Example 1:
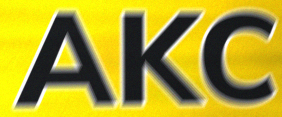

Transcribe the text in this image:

AKC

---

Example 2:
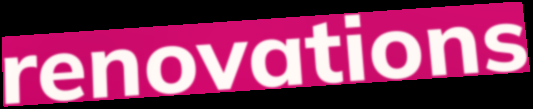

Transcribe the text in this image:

renovations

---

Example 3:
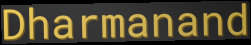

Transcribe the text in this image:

Dharmanand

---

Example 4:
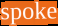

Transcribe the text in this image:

spoke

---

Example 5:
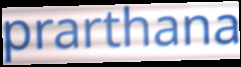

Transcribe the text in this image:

prarthana